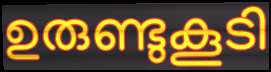
ഉരുണ്ടുകൂടി